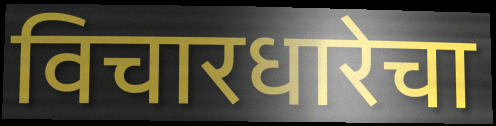
विचारधारेचा